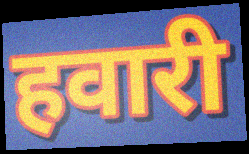
हवारी